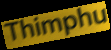
Thimphu